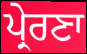
ਪ੍ਰੇਰਣਾ